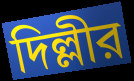
দিল্লীর